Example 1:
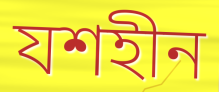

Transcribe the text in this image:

যশহীন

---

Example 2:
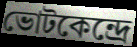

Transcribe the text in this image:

ভোটকেন্দ্রে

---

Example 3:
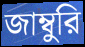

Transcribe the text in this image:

জাম্বুরি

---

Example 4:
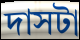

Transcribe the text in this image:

দাসটা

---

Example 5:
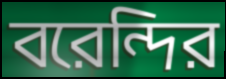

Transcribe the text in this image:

বরেন্দির